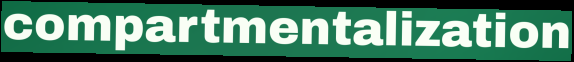
compartmentalization